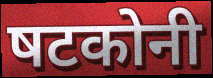
षटकोनी